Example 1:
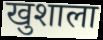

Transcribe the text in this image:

खुशाला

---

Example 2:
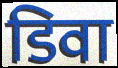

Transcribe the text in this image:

डिवा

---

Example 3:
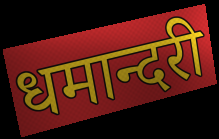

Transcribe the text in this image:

धमान्दरी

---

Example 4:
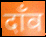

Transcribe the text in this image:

दाँव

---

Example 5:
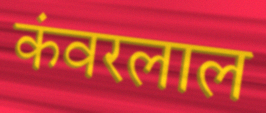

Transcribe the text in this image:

कंवरलाल